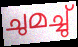
ചുമച്ചു്